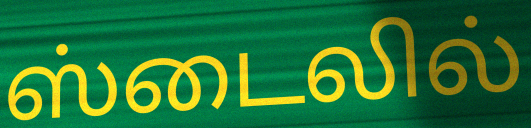
ஸ்டைலில்